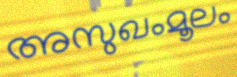
അസുഖംമൂലം